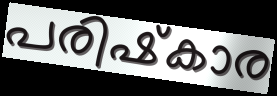
പരിഷ്‌കാര